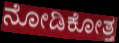
ನೋಡಿಕೋತ್ತ